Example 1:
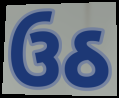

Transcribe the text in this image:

ઉઠ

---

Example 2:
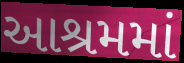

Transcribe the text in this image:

આશ્રમમાં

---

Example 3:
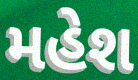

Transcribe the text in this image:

મહેશ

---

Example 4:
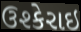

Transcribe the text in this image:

ઉશ્કેરાઇ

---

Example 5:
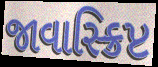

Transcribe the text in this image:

જાવાસ્ક્રિપ્ટ